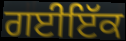
ਗਈਇੱਕ